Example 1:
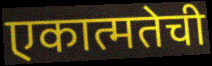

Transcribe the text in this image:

एकात्मतेची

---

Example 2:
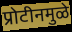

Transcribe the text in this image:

प्रोटीनमुळे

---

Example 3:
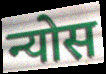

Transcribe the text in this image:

न्योस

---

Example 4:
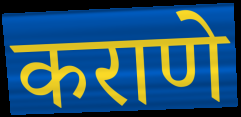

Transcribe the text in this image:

कराणे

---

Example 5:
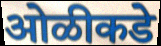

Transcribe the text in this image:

ओळीकडे